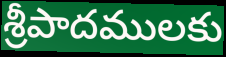
శ్రీపాదములకు